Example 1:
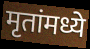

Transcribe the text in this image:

मृतांमध्ये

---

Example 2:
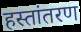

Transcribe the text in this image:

हस्तांतरण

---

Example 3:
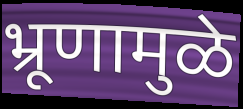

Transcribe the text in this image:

भ्रूणामुळे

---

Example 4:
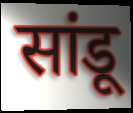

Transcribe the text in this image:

सांडू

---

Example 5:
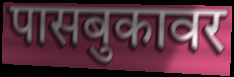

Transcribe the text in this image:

पासबुकावर